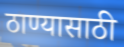
ठाण्यासाठी